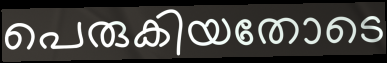
പെരുകിയതോടെ